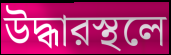
উদ্ধারস্থলে